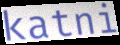
katni